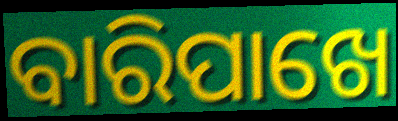
ବାରିପାଖେ